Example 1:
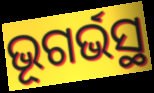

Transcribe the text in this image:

ଭୂଗର୍ଭସ୍ଥ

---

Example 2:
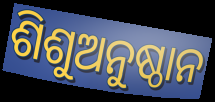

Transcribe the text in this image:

ଶିଶୁଅନୁଷ୍ଠାନ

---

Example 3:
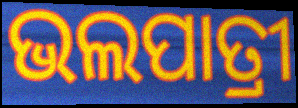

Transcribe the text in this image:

ଭଲପାତ୍ରୀ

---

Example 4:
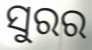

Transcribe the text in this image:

ସୁରର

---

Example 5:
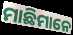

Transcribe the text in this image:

ମାଛିମାନେ